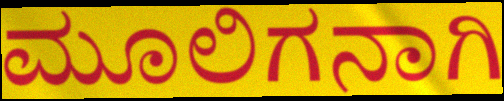
ಮೂಲಿಗನಾಗಿ